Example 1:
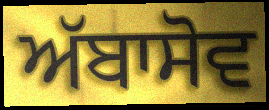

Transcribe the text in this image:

ਅੱਬਾਸੋਵ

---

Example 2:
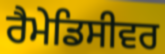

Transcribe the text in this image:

ਰੈਮੇਡਿਸੀਵਰ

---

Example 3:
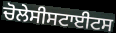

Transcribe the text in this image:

ਚੋਲੇਸੀਸਟਾਈਟਸ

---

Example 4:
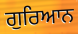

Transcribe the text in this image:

ਗੁਰਿਆਨ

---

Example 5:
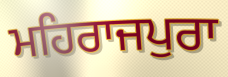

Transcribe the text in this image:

ਮਹਿਰਾਜਪੁਰਾ